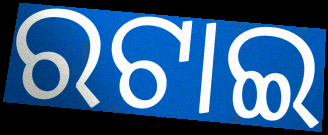
ରଟାଇ